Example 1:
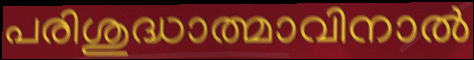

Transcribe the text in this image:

പരിശുദ്ധാത്മാവിനാൽ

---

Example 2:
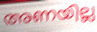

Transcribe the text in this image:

അണയില്ല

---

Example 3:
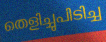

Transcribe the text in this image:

തെളിച്ചുപിടിച്ച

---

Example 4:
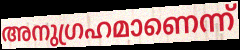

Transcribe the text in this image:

അനുഗ്രഹമാണെന്ന്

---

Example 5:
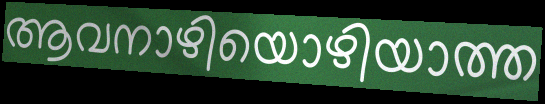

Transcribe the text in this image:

ആവനാഴിയൊഴിയാത്ത